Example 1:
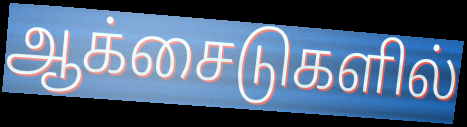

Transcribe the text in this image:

ஆக்சைடுகளில்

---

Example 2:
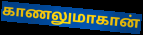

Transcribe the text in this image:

காணலுமாகான்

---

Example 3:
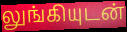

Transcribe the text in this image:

லுங்கியுடன்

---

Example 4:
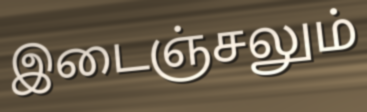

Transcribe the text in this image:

இடைஞ்சலும்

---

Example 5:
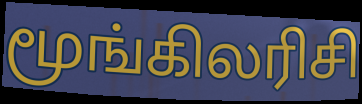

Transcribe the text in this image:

மூங்கிலரிசி